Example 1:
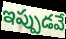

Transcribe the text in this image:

ఇప్పుడవే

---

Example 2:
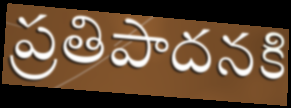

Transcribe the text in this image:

ప్రతిపాదనకి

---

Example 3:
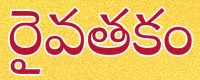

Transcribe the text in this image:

రైవతకం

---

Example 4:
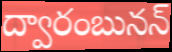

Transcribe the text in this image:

ద్వారంబునన్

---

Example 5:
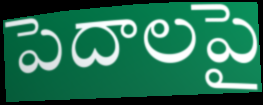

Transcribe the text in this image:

పెదాలపై